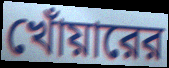
খোঁয়ারের